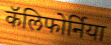
कॅलिफोर्निया